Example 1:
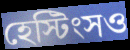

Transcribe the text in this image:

হেস্টিংসও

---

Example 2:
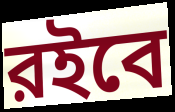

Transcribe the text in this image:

রইবে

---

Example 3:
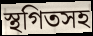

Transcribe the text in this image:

স্থগিতসহ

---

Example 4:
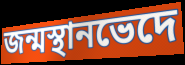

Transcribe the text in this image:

জন্মস্থানভেদে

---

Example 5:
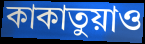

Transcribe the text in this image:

কাকাতুয়াও